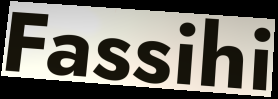
Fassihi